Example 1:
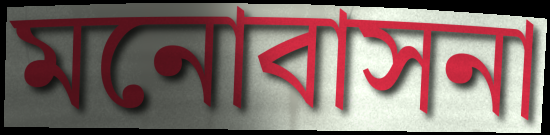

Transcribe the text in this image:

মনোবাসনা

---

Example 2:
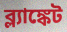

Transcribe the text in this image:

ব্ল্যাঙ্কেট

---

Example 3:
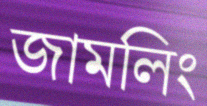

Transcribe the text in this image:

জামলিং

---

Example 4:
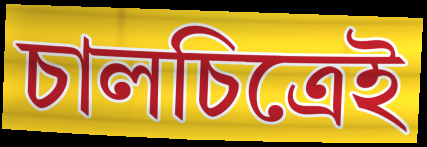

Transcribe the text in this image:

চালচিত্রেই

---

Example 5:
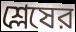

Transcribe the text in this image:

শ্লেষের